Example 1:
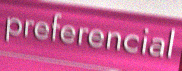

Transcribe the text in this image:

preferencial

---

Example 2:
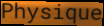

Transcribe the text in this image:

Physique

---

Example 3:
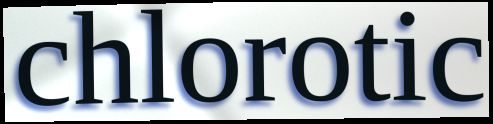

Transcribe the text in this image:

chlorotic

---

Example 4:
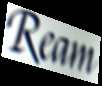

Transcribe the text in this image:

Ream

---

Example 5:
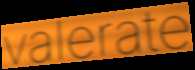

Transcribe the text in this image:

valerate